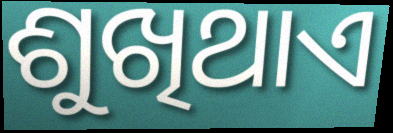
ଶୁଖିଥାଏ